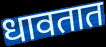
धावतात